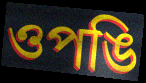
ওপঙি